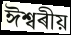
ঈশ্বৰীয়